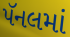
પૅનલમાં